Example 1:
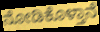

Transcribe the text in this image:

ನೋಡಿಕೊಳ್ತಾನೆ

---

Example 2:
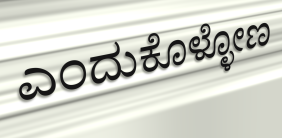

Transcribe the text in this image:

ಎಂದುಕೊಳ್ಳೋಣ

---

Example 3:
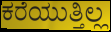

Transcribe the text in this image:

ಕರೆಯುತ್ತಿಲ್ಲ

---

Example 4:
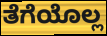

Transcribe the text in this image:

ತೆಗೆಯೊಲ್ಲ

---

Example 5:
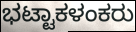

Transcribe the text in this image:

ಭಟ್ಟಾಕಳಂಕರು